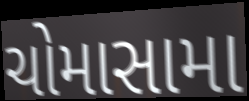
ચોમાસામા